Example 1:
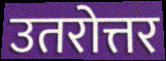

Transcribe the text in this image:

उतरोत्तर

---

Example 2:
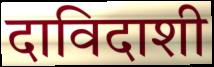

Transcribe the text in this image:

दाविदाशी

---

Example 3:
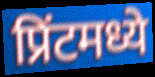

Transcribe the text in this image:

प्रिंटमध्ये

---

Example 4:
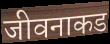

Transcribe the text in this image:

जीवनाकड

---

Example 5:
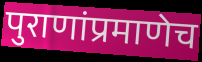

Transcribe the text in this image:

पुराणांप्रमाणेच